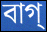
বাগ্